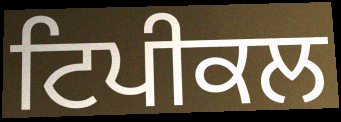
ਟਿਪੀਕਲ